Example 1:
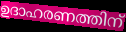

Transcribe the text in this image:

ഉദാഹരണത്തിന്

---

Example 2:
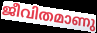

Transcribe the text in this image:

ജീവിതമാണു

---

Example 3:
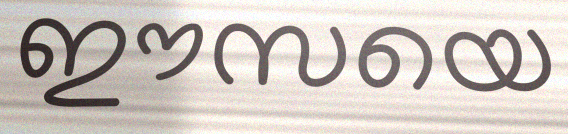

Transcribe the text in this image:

ഈസയെ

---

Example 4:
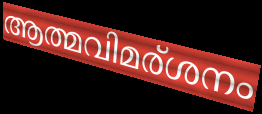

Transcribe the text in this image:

ആത്മവിമര്ശനം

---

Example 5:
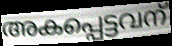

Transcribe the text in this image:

അകപ്പെട്ടവന്